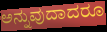
ಅನ್ನುವುದಾದರೂ